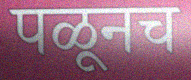
पळूनच